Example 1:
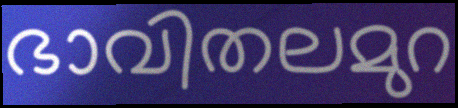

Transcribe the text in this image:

ഭാവിതലമുറ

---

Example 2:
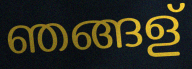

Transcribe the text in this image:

ഞങ്ങള്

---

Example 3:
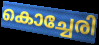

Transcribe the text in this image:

കൊച്ചേരി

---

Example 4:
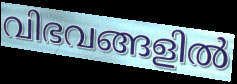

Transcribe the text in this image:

വിഭവങ്ങളിൽ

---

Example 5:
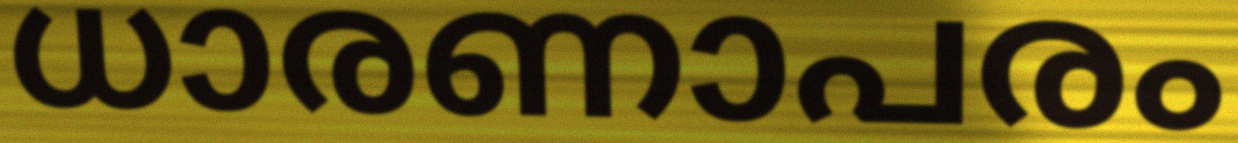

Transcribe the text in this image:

ധാരണാപരം